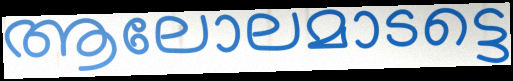
ആലോലമാടട്ടെ